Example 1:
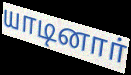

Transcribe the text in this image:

யாடினார்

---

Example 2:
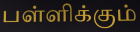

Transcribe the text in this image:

பள்ளிக்கும்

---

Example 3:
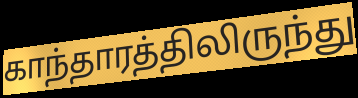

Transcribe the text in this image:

காந்தாரத்திலிருந்து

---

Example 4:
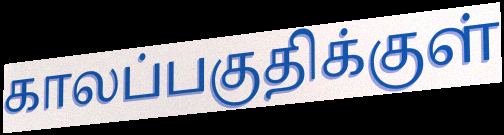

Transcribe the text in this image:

காலப்பகுதிக்குள்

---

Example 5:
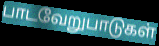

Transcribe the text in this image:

பாடவேறுபாடுகள்